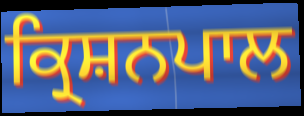
ਕ੍ਰਿਸ਼ਨਪਾਲ